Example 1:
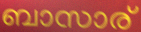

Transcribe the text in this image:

ബാസാര്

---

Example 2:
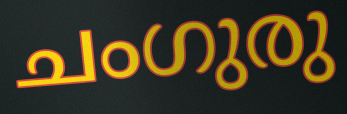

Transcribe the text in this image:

ചംഗുരു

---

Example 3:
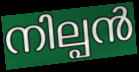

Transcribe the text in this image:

നില്പൻ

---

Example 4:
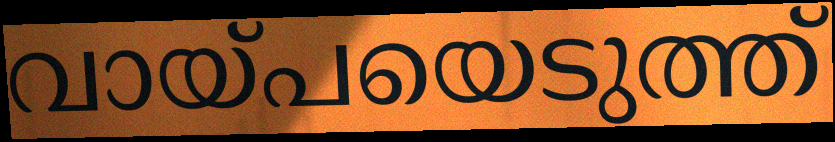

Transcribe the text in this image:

വായ്പയെടുത്ത്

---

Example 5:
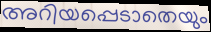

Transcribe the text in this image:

അറിയപ്പെടാതെയും